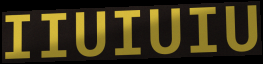
IIUIUIU